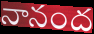
నానంద